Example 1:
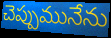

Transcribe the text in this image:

చెప్పుమునేను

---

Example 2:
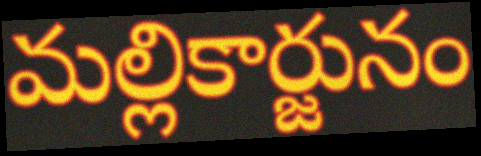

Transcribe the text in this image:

మల్లికార్జునం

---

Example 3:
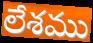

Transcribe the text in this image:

లేశము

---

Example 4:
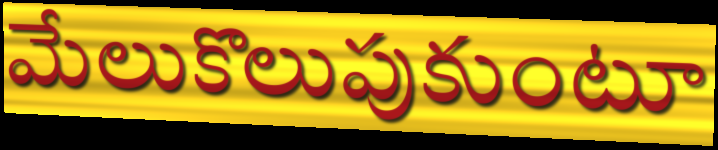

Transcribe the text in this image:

మేలుకొలుపుకుంటూ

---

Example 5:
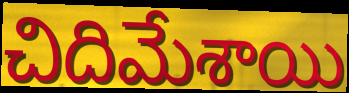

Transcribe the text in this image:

చిదిమేశాయి